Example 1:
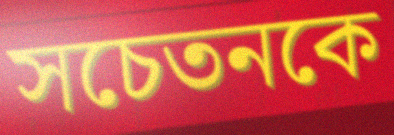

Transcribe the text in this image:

সচেতনকে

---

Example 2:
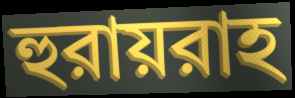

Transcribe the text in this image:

হুরায়রাহ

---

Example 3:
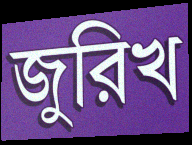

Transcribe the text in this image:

জুরিখ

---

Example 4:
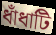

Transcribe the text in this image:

ধাঁধাটি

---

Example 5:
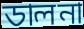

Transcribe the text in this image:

ডালনা